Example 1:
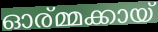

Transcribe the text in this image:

ഓര്മ്മക്കായ്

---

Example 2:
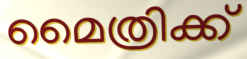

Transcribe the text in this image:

മൈത്രിക്ക്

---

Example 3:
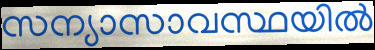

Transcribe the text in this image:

സന്യാസാവസ്ഥയിൽ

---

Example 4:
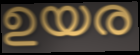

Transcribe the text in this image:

ഉയര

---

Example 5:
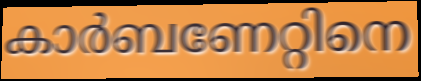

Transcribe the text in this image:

കാർബണേറ്റിനെ